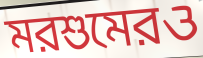
মরশুমেরও